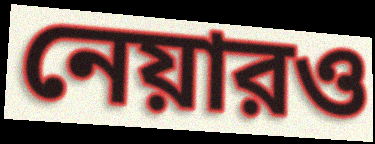
নেয়ারও